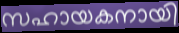
സഹായകനായി